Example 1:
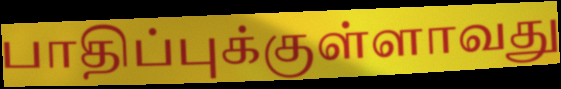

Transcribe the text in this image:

பாதிப்புக்குள்ளாவது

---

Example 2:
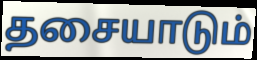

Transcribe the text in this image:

தசையாடும்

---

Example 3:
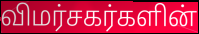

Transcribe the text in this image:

விமர்சகர்களின்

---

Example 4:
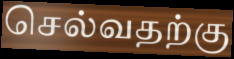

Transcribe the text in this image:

செல்வதற்கு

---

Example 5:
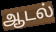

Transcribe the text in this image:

ஆடல்